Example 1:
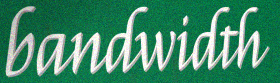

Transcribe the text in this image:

bandwidth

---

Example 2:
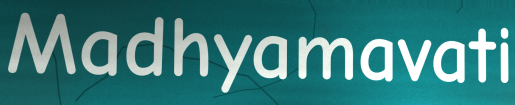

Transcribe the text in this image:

Madhyamavati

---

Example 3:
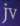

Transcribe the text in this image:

jv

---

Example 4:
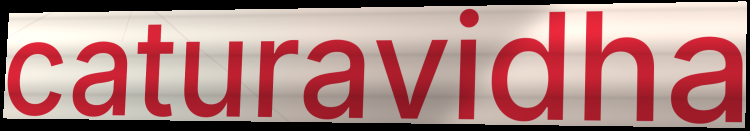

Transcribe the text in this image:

caturavidha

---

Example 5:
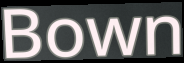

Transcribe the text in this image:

Bown